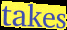
takes